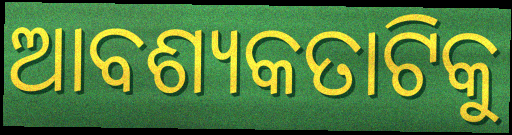
ଆବଶ୍ୟକତାଟିକୁ